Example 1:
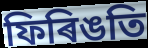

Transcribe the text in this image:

ফিৰিঙতি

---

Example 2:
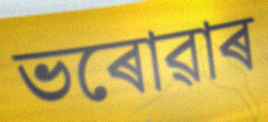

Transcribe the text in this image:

ভৰোৱাৰ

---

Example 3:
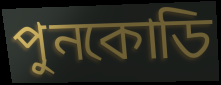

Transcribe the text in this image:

পুনকোডি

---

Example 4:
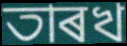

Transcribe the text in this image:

তাৰখ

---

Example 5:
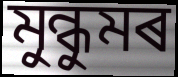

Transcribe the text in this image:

মুন্ধুমৰ